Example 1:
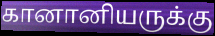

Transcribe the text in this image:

கானானியருக்கு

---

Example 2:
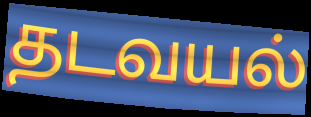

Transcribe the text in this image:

தடவயல்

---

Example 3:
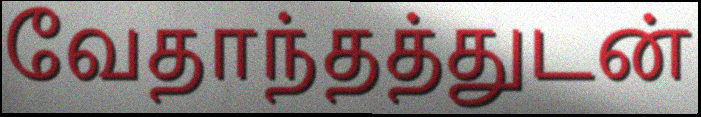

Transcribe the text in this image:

வேதாந்தத்துடன்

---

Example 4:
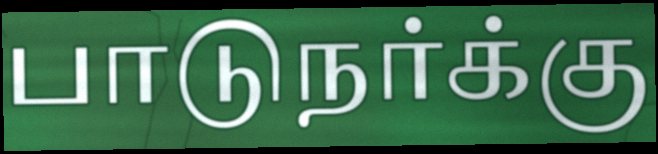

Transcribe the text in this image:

பாடுநர்க்கு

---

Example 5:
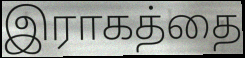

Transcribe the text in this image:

இராகத்தை